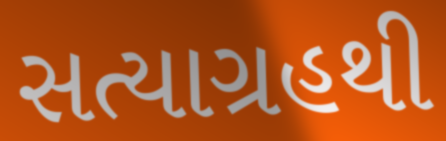
સત્યાગ્રહથી